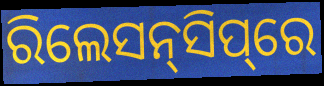
ରିଲେସନ୍‌ସିପ୍‌ରେ